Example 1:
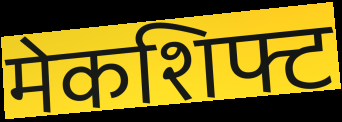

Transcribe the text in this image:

मेकशिफ्ट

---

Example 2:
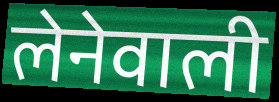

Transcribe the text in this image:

लेनेवाली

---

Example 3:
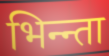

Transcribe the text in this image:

भिन्न्ता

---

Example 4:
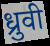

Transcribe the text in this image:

ध्रुवी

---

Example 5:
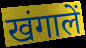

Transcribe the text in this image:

खंगालें